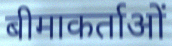
बीमाकर्ताओं